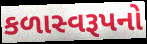
કળાસ્વરૂપનો